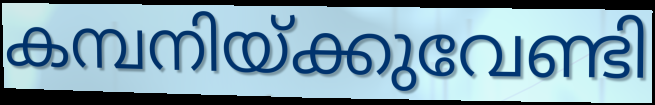
കമ്പനിയ്ക്കുവേണ്ടി